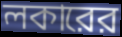
লকারের